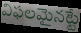
విఫలమైనట్టే